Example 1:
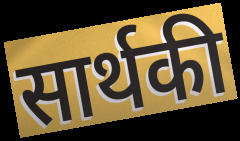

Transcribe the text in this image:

सार्थकी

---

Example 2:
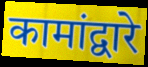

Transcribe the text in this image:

कामांद्वारे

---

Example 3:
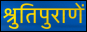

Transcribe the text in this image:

श्रुतिपुराणें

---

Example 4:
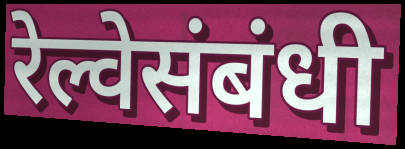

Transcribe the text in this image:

रेल्वेसंबंधी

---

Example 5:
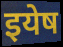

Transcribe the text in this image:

इयेष